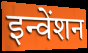
इन्वेंशन